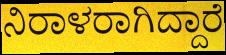
ನಿರಾಳರಾಗಿದ್ದಾರೆ